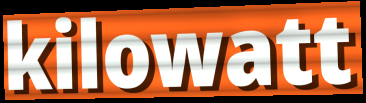
kilowatt